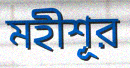
মহীশূর